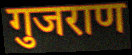
गुजराण